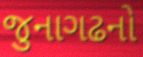
જુનાગઢનો